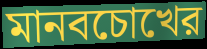
মানবচোখের